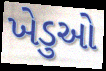
ખેડુઓ